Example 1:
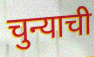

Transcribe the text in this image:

चुन्याची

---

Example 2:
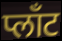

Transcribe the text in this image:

प्लाँट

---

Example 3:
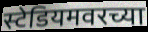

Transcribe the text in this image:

स्टेडियमवरच्या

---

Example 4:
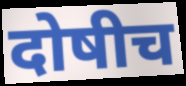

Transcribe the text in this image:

दोषीच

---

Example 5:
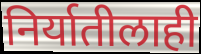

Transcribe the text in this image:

निर्यातीलाही